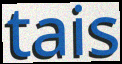
tais